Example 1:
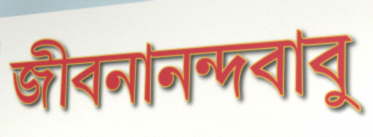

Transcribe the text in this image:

জীবনানন্দবাবু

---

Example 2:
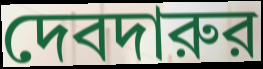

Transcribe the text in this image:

দেবদারুর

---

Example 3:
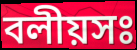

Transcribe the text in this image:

বলীয়সঃ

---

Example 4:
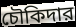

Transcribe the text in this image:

চৌকিদার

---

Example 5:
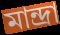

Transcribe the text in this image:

মান্দ্রা